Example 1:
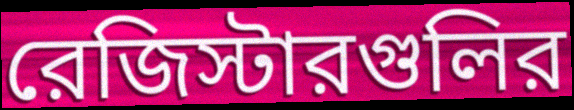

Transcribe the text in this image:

রেজিস্টারগুলির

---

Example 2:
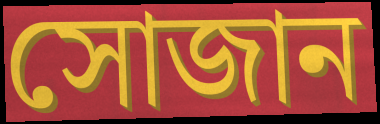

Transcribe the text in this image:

সোজান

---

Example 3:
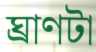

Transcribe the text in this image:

ঘ্রাণটা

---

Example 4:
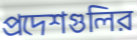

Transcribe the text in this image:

প্রদেশগুলির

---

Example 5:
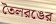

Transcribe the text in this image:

তৈলরঙের